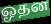
ஓதன